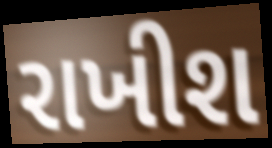
રાખીશ